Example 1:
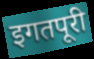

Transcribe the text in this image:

इगतपूरी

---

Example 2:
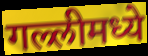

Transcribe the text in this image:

गल्लीमध्ये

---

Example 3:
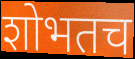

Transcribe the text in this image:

शोभतच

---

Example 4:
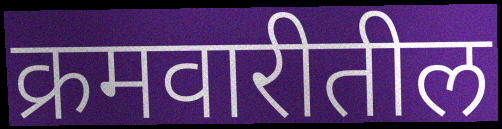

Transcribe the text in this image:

क्रमवारीतील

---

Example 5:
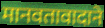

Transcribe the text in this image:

मानवतावादाने